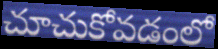
చూచుకోవడంలో